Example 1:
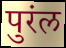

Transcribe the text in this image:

पुरंल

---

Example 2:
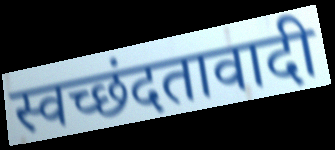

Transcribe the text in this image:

स्वच्छंदतावादी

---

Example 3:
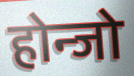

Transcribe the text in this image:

होन्जो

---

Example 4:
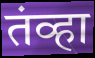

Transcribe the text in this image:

तंव्हा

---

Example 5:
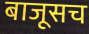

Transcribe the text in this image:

बाजूसच